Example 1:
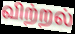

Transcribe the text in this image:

விற்றல்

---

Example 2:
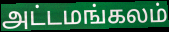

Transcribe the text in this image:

அட்டமங்கலம்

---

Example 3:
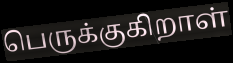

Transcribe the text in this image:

பெருக்குகிறாள்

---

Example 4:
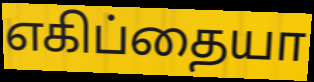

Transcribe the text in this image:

எகிப்தையா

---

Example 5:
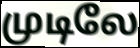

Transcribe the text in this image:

முடிலே